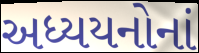
અધ્યયનોનાં